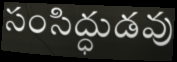
సంసిద్ధుడవు